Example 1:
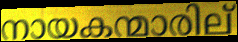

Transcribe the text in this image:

നായകന്മാരില്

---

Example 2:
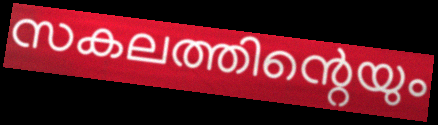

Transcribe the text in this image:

സകലത്തിന്റെയും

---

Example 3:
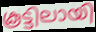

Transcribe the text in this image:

കൂട്ടിലായി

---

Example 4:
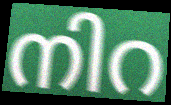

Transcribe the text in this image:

നിറ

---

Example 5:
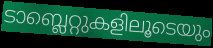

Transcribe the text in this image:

ടാബ്ലെറ്റുകളിലൂടെയും